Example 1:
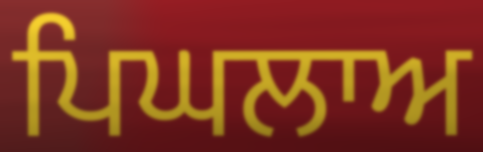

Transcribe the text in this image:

ਪਿਘਲਾਅ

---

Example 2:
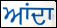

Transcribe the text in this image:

ਆਂਦਾ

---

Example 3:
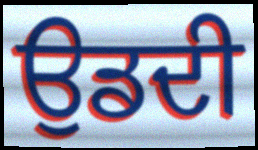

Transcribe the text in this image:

ਉਡਦੀ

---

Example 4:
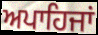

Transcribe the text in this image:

ਅਪਾਹਿਜਾਂ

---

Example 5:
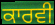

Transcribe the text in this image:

ਕਾਰਵੀ